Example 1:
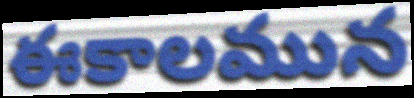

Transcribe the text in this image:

ఈకాలమున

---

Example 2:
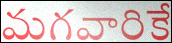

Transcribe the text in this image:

మగవారికే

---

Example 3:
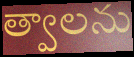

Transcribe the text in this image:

త్వాలను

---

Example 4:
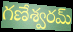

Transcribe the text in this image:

గణేశ్వరమ్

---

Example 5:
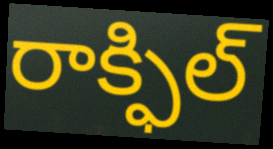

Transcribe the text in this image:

రాక్ఫిల్